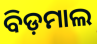
ବିଡ଼ମାଲ